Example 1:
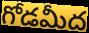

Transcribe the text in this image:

గోడమీద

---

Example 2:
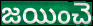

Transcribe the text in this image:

జయించె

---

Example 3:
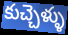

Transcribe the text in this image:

కుచ్చెళ్ళు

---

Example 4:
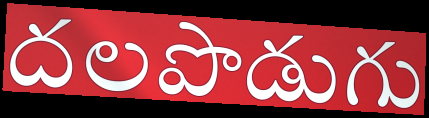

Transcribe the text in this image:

దలపొడుగు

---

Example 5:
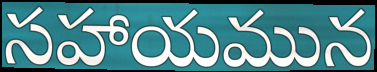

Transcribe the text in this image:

సహాయమున